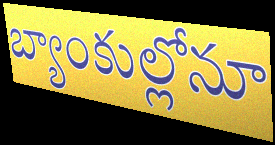
బ్యాంకుల్లోనూ